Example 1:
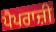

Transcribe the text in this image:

ਪੈਪਰਾਜ਼ੀ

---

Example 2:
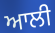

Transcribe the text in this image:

ਆਲੀ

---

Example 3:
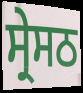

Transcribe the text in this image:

ਸ੍ਰੇਸਠ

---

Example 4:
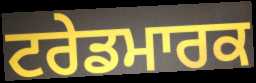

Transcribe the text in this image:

ਟਰੇਡਮਾਰਕ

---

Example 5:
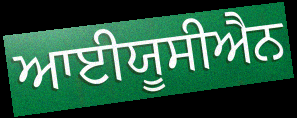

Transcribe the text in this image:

ਆਈਯੂਸੀਐਨ